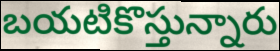
బయటికొస్తున్నారు